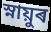
স্নায়ুৰ